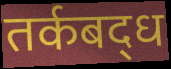
तर्कबद्ध